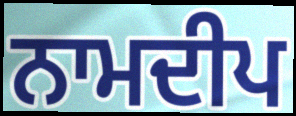
ਨਾਮਦੀਪ